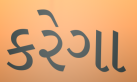
કરેગા